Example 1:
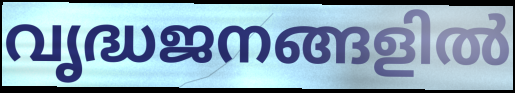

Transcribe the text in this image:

വൃദ്ധജനങ്ങളിൽ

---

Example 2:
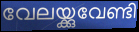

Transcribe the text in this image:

വേലയ്ക്കുവേണ്ടി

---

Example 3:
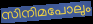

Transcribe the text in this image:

സിനിമപോലും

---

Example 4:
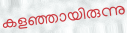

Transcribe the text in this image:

കളഞ്ഞായിരുന്നു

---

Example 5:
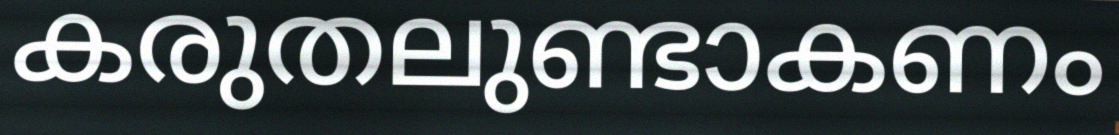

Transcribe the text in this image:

കരുതലുണ്ടാകണം